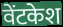
वेंटकेश